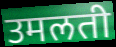
उमलती